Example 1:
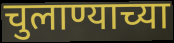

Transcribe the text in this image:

चुलाण्याच्या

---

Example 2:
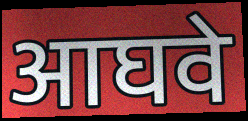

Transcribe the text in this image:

आघवे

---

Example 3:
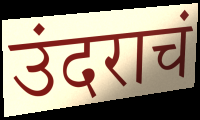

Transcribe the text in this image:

उंदराचं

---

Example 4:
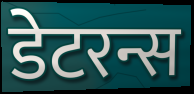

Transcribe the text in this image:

डेटरन्स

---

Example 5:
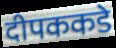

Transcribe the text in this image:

दीपककडे